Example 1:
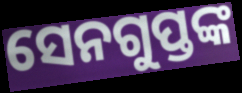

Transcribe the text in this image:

ସେନଗୁପ୍ତଙ୍କ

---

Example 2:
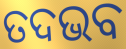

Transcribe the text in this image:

ତଦଭବ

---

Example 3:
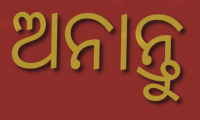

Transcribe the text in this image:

ଅନାନ୍ତୁ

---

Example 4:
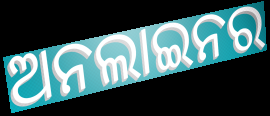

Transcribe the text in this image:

ଅନଲାଇନର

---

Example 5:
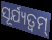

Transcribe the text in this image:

ସୂର୍ଯ୍ୟତ୍ୱମ୍